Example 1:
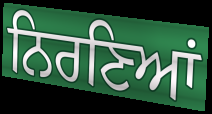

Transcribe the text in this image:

ਨਿਰਣਿਆਂ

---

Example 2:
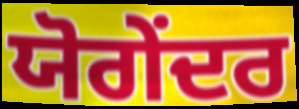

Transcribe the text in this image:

ਯੋਗੇਂਦਰ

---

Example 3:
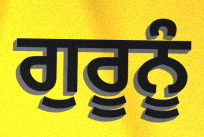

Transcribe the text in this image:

ਗੁਰੂਨੂੰ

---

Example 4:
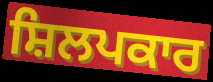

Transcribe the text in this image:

ਸ਼ਿਲਪਕਾਰ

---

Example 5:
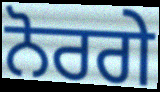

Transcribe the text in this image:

ਨੋਰਗੇ